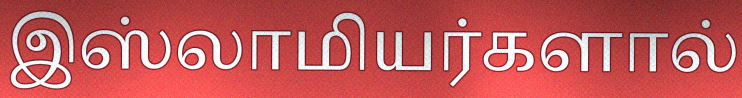
இஸ்லாமியர்களால்